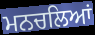
ਮਨਚਲਿਆਂ